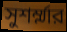
সুশর্ম্মার